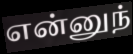
என்னுந்